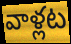
వాళ్లట